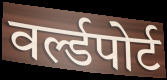
वर्ल्डपोर्ट